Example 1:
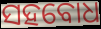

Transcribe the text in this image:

ସହବୋଧ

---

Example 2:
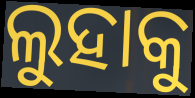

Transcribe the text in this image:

ଲୁହାକୁ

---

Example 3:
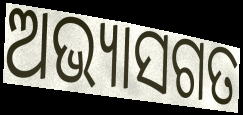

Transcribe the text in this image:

ଅଭ୍ଯାସଗତ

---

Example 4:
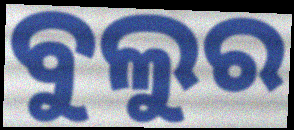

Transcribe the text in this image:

ବୁଲୁର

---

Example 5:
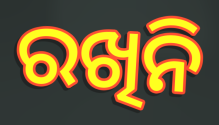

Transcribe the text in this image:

ରଖିନି